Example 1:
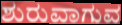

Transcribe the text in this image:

ಶುರುವಾಗುವ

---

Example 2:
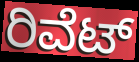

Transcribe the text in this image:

ರಿವೆಟ್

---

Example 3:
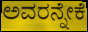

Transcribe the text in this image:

ಅವರನ್ನೇಕೆ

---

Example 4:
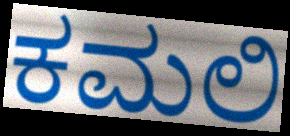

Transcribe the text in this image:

ಕಮಲಿ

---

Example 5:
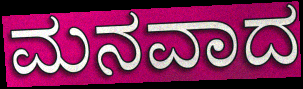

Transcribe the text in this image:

ಮನವಾದ